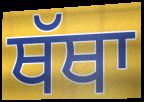
ਥੱਥਾ